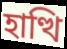
হাত্থি